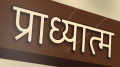
प्राध्यात्म